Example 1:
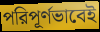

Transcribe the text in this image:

পরিপূর্ণভাবেই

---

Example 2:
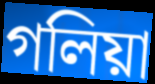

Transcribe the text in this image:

গলিয়া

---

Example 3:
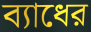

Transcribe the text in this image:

ব্যাধের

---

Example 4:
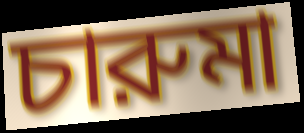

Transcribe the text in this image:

চারুমা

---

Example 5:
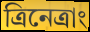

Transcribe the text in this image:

ত্রিনেত্রাং